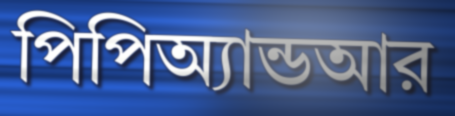
পিপিঅ্যান্ডআর